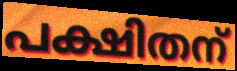
പക്ഷിതന്